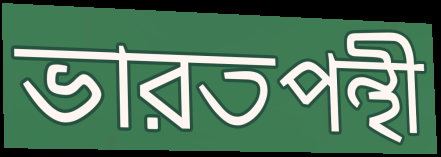
ভারতপন্থী